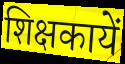
शिक्षकायें